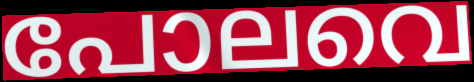
പോലവെ